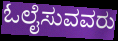
ಓಲೈಸುವವರು